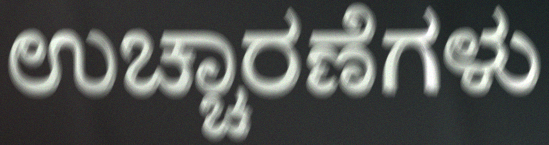
ಉಚ್ಚಾರಣೆಗಳು